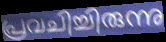
പ്രവചിച്ചിരുന്നു